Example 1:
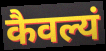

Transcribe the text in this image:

कैवल्यं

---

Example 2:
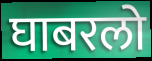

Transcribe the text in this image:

घाबरलो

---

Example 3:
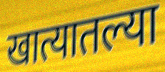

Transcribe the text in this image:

खात्यातल्या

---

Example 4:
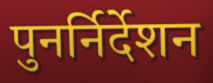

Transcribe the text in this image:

पुनर्निर्देशन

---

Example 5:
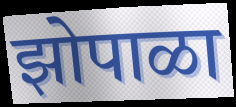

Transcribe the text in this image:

झोपाळा